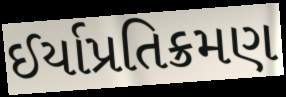
ઈર્યાપ્રતિક્રમણ